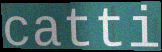
catti